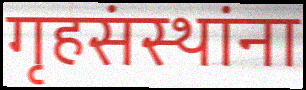
गृहसंस्थांना